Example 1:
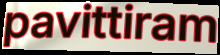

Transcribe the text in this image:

pavittiram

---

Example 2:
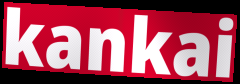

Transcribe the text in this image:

kankai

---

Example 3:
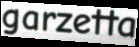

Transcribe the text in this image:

garzetta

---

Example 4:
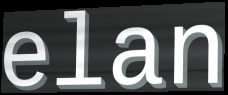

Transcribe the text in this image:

elan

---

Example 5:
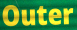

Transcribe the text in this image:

Outer